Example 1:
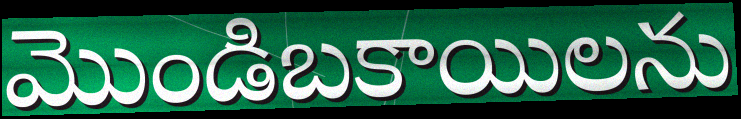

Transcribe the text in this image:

మొండిబకాయిలను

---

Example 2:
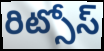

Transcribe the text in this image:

రిట్సోస్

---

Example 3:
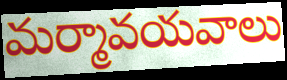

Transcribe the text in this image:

మర్మావయవాలు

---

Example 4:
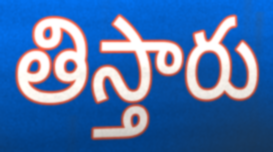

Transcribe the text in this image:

తిస్తారు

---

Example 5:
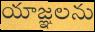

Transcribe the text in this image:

యాజ్ఞలను